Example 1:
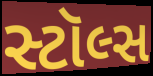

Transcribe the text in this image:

સ્ટૉલ્સ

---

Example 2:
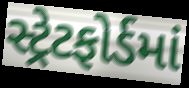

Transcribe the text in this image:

સ્ટ્રેટફોર્ડમાં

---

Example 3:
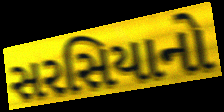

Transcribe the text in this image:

સરસિયાનો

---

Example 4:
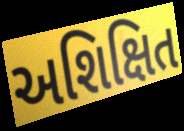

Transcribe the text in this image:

અશિક્ષિત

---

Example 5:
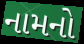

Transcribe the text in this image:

નામનો